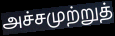
அச்சமுற்றுத்